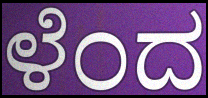
ಳೆಂದ